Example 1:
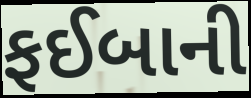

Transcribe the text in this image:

ફઈબાની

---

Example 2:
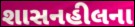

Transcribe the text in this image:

શાસનહીલના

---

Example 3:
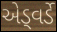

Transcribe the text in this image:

એડ્વર્ડે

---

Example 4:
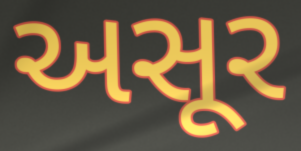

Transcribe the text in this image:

અસૂર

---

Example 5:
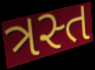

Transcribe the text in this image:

ત્રસ્ત